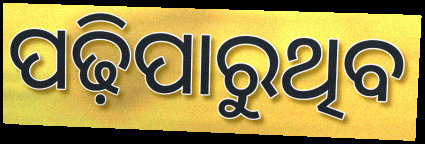
ପଢ଼ିପାରୁଥିବ